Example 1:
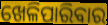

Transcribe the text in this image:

ଖେଳିପାରିବାର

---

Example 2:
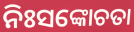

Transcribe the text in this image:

ନିଃସଙ୍କୋଚତା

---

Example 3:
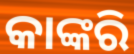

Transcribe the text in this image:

କାଙ୍କରି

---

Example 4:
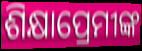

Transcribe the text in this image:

ଶିକ୍ଷାପ୍ରେମୀଙ୍କ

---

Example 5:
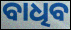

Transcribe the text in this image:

ବାଧିବ